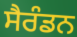
ਸੈਰੰਡਨ